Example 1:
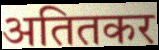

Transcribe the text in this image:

अतितकर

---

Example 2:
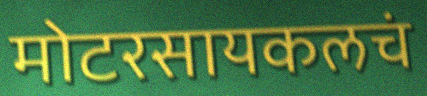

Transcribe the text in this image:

मोटरसायकलचं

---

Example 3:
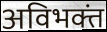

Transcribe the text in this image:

अविभक्तं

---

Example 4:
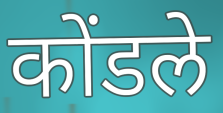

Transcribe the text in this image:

कोंडले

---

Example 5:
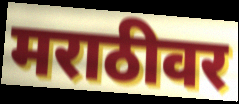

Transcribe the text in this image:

मराठीवर